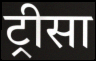
ट्रीसा